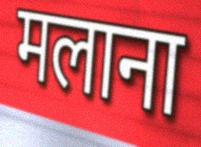
मलाना